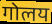
गोलय